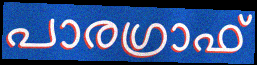
പാരഗ്രാഫ്